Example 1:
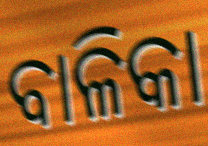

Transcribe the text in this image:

ବାଳିକା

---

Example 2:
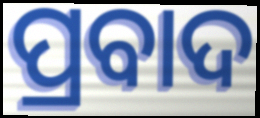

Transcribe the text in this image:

ପ୍ରବାଦ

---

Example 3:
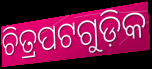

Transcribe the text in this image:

ଚିତ୍ରପଟଗୁଡ଼ିକ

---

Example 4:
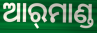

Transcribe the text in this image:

ଆର୍‌ମାଣ୍ଡ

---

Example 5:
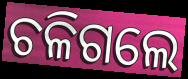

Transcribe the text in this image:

ଚଳିଗଲେ